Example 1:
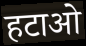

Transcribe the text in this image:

हटाओ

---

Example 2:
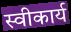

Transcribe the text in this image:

स्‍वीकार्य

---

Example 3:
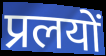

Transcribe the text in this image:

प्रलयों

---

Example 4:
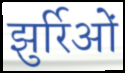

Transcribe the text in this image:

झुर्रिओं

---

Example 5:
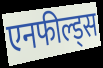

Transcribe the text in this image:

एनफील्ड्स